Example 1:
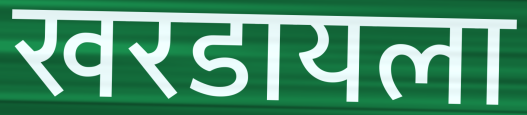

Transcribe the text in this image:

खरडायला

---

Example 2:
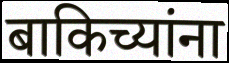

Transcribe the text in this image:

बाकिच्यांना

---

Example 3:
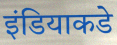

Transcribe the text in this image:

इंडियाकडे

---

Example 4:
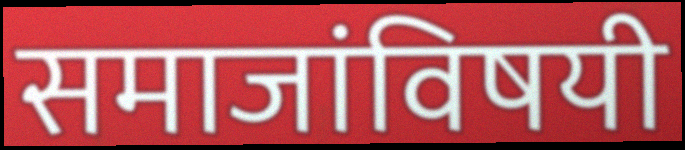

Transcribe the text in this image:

समाजांविषयी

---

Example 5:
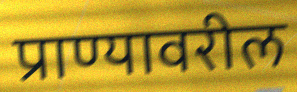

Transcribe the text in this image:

प्राण्यावरील